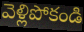
వెళ్లిపోకండి